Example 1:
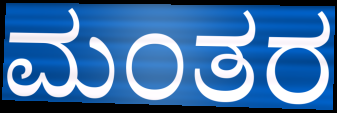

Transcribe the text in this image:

ಮಂತರ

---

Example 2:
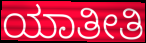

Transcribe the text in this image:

ಯಾತೀತಿ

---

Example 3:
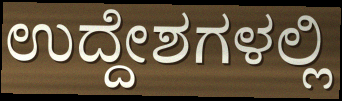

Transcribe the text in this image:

ಉದ್ದೇಶಗಳಲ್ಲಿ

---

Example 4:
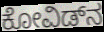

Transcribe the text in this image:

ಕೋವಿಡ್‌ನ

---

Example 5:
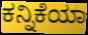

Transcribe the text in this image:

ಕನ್ನಿಕೆಯಾ